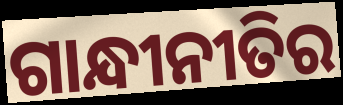
ଗାନ୍ଧୀନୀତିର